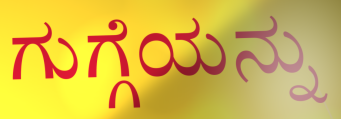
ಗುಗ್ಗೆಯನ್ನು